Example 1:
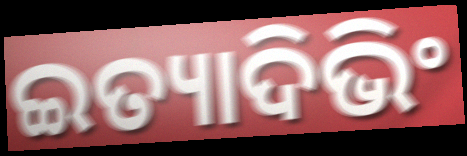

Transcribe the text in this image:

ଇତ୍ୟାଦିଭିଂ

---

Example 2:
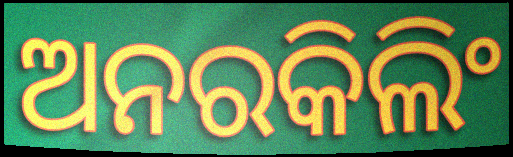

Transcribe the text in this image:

ଅନରକିଲିଂ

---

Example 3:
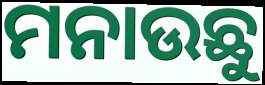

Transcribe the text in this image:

ମନାଉଛୁ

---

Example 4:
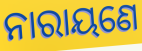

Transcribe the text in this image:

ନାରାୟଣେ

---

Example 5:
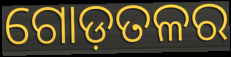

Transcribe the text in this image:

ଗୋଡ଼ତଳର